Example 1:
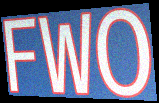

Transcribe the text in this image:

FWO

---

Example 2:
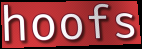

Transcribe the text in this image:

hoofs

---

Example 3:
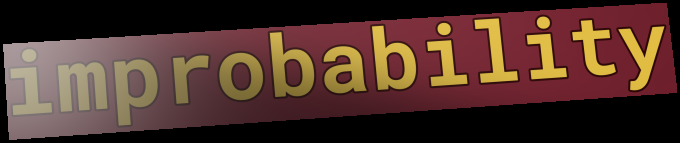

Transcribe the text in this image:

improbability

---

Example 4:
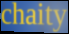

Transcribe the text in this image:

chaity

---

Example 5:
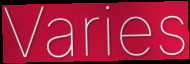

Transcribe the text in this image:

Varies